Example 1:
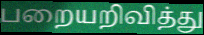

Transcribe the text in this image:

பறையறிவித்து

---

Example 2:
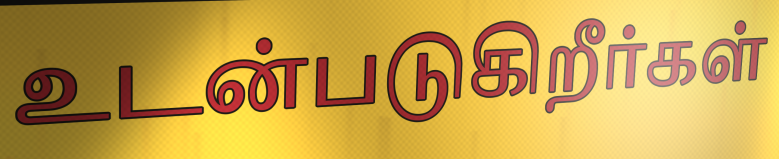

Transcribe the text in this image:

உடன்படுகிறீர்கள்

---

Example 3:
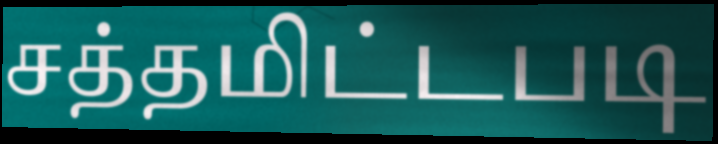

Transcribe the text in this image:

சத்தமிட்டபடி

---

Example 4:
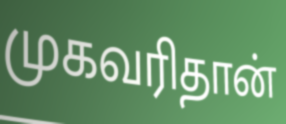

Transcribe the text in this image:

முகவரிதான்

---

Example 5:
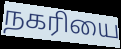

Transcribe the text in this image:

நகரியை